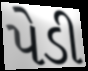
પેડી